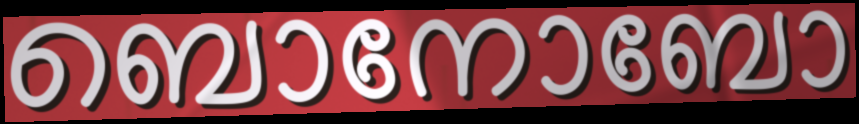
ബൊനോബോ